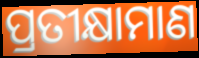
ପ୍ରତୀକ୍ଷାମାଣ